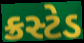
ક્રસ્ટેડ